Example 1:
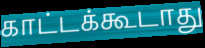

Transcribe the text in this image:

காட்டக்கூடாது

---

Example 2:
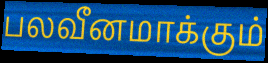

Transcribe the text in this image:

பலவீனமாக்கும்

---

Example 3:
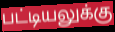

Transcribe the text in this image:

பட்டியலுக்கு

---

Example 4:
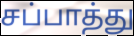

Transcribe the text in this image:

சப்பாத்து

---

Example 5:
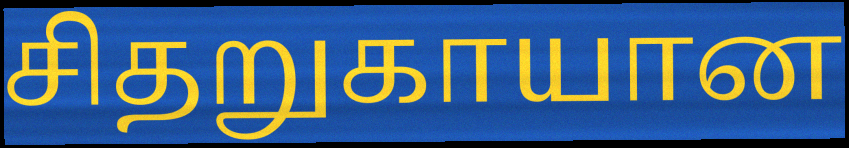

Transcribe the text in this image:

சிதறுகாயான